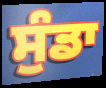
ਸੁੰਡਾ